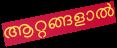
ആറ്റങ്ങളാൽ